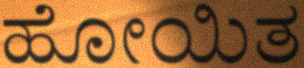
ಹೋಯಿತ